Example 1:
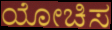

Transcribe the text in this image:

ಯೋಚಿಸ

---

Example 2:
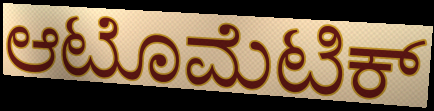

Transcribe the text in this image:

ಆಟೊಮೆಟಿಕ್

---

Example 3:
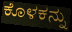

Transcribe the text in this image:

ಕೊಳಕನ್ನು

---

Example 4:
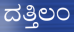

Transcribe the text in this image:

ದತ್ತಿಲಂ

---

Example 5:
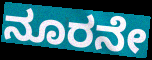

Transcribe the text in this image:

ನೂರನೇ